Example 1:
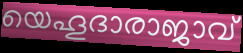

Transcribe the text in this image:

യെഹൂദാരാജാവ്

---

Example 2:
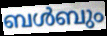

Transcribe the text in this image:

ബൾബും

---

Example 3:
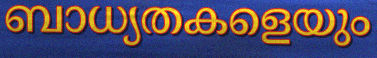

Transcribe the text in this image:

ബാധ്യതകളെയും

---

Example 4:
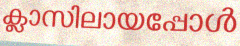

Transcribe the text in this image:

ക്ലാസിലായപ്പോൾ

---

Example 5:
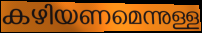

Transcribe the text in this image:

കഴിയണമെന്നുള്ള